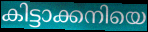
കിട്ടാക്കനിയെ